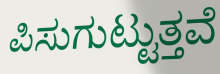
ಪಿಸುಗುಟ್ಟುತ್ತವೆ